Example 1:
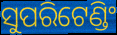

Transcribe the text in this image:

ସୁପରିଟେଣ୍ଡିଂ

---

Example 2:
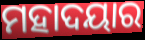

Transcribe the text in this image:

ମହାଦୟାର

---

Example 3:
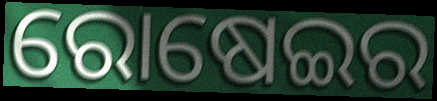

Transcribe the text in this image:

ରୋଷେଇର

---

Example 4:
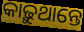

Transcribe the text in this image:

କାଢ଼ୁଥାନ୍ତେ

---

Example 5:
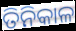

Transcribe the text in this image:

ତିନିକାଳ